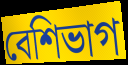
বেশিভাগ